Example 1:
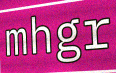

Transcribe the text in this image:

mhgr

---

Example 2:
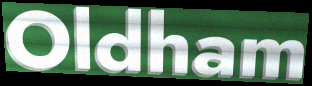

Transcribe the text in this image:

Oldham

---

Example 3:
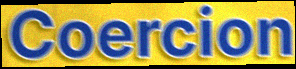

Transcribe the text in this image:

Coercion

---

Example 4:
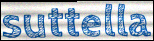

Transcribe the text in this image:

suttella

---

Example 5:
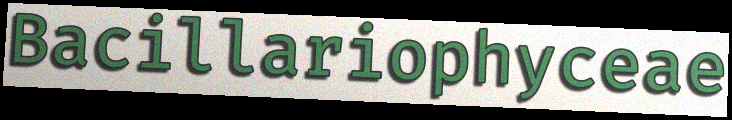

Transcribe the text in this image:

Bacillariophyceae